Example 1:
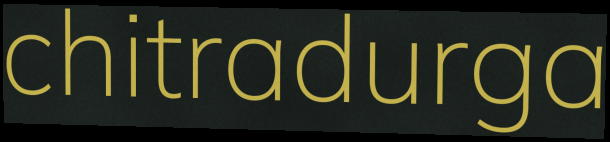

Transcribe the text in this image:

chitradurga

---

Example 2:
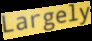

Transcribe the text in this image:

Largely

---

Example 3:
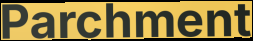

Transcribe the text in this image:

Parchment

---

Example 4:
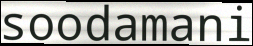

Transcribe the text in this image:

soodamani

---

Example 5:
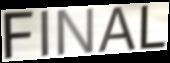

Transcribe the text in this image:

FINAL